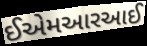
ઈએમઆરઆઈ